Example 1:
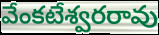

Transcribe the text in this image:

వేంకటేశ్వరరావు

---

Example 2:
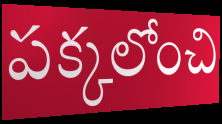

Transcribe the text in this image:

పక్కలోంచి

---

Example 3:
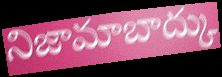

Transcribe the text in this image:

నిజామాబాద్కు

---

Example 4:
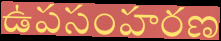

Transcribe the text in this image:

ఉపసంహరణ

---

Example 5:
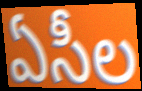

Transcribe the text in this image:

ఏసీల